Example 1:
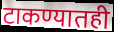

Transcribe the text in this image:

टाकण्यातही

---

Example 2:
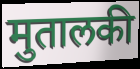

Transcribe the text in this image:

मुतालकी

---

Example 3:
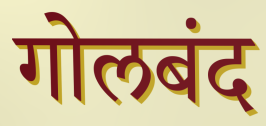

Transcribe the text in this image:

गोलबंद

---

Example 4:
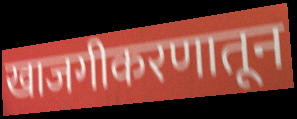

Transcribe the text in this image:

खाजगीकरणातून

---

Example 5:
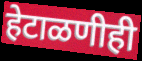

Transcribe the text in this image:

हेटाळणीही